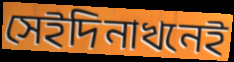
সেইদিনাখনেই